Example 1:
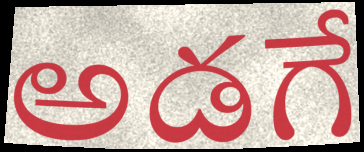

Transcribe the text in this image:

అడగే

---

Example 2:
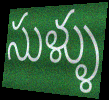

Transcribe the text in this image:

సుళ్ళు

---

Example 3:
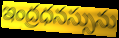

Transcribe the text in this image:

ఇంద్రధనస్సును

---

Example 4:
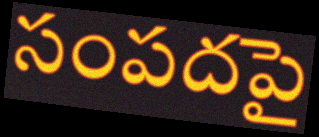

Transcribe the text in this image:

సంపదపై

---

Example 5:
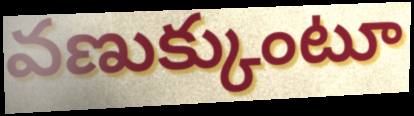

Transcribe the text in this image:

వణుక్కుంటూ